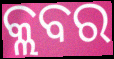
କ୍ଲବର